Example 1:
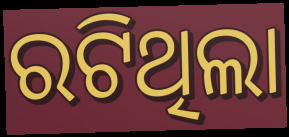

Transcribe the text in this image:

ରଟିଥିଲା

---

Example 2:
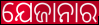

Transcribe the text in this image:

ଯେଜାନାର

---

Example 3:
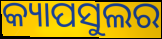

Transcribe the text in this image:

କ୍ୟାପସୁଲର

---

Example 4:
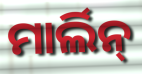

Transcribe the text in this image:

ମାର୍ଲିନ୍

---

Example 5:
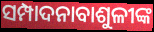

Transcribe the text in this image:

ସମ୍ପାଦନାବାଶୁଳୀଙ୍କ